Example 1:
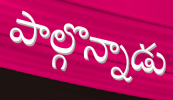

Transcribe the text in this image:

పాల్గొన్నాడు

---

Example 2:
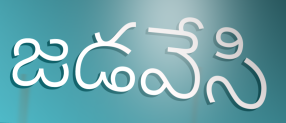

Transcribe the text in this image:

జడవేసి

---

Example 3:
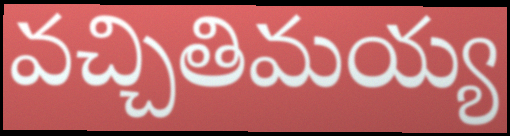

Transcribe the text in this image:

వచ్చితిమయ్య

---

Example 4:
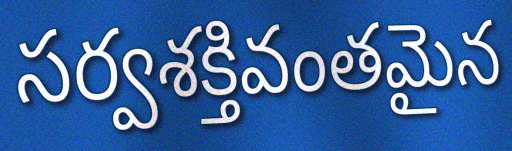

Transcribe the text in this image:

సర్వశక్తివంతమైన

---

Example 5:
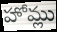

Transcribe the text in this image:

హోమ్లు